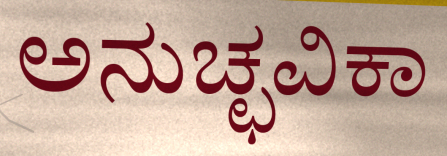
ಅನುಚ್ಛವಿಕಾ